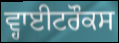
ਵ੍ਹਾਈਟਰੌਕਸ